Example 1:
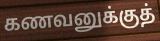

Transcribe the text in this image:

கணவனுக்குத்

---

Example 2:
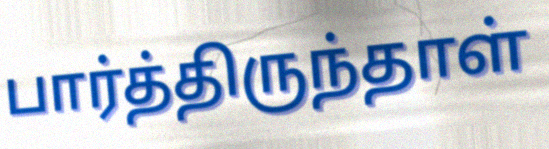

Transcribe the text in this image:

பார்த்திருந்தாள்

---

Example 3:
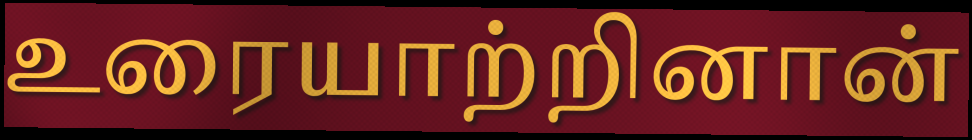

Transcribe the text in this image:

உரையாற்றினான்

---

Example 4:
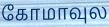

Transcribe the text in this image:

கோமாவுல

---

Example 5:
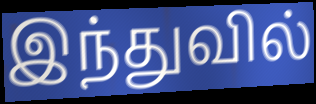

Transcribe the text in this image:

இந்துவில்